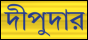
দীপুদার